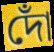
দোঁ